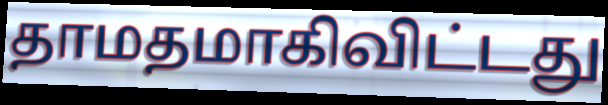
தாமதமாகிவிட்டது